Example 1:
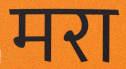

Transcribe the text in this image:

मरा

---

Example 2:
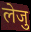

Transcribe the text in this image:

लेजु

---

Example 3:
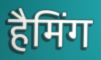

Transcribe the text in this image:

हैमिंग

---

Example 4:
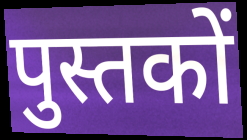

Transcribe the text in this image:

पुस्तकों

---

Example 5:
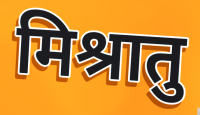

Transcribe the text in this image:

मिश्रातु